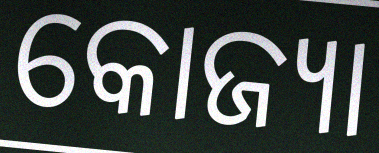
କୋଜ୍ୟା